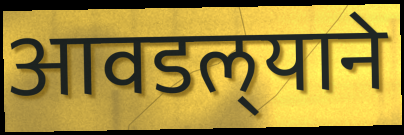
आवडल्याने